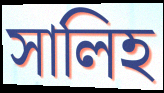
সালিহ